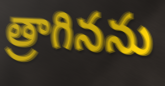
త్రాగినను